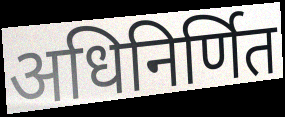
अधिनिर्णित